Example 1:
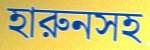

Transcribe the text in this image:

হারুনসহ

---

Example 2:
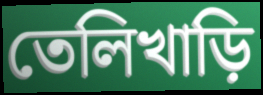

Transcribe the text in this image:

তেলিখাড়ি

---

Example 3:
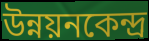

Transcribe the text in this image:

উন্নয়নকেন্দ্র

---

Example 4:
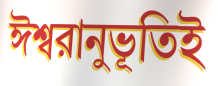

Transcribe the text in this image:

ঈশ্বরানুভূতিই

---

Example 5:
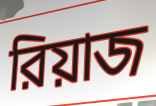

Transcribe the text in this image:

রিয়াজ